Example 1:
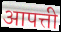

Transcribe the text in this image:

आपत्ती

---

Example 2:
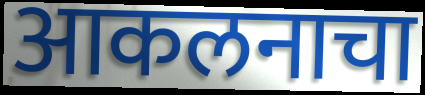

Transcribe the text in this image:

आकलनाचा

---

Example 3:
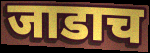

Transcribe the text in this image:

जाडाच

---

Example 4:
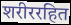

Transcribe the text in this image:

शरीररहित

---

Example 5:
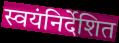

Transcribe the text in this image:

स्वयंनिर्देशित